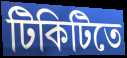
টিকিটিতে